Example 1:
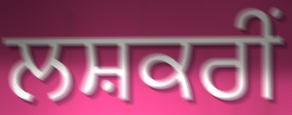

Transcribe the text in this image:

ਲਸ਼ਕਰੀਂ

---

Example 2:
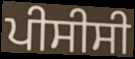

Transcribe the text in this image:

ਪੀਸੀਸੀ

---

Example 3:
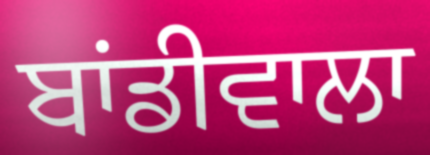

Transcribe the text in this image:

ਬਾਂਡੀਵਾਲਾ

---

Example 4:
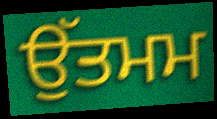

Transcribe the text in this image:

ਉੱਤਮਮ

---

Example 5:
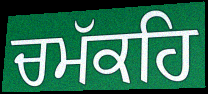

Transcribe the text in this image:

ਚਮੱਕਹਿ